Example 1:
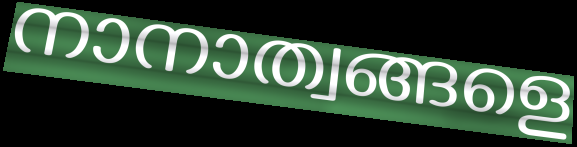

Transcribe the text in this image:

നാനാത്വങ്ങളെ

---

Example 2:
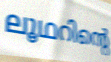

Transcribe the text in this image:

ലൂഥറിന്റെ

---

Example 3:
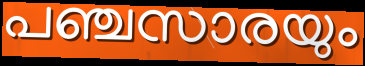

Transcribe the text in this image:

പഞ്ചസാരയും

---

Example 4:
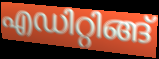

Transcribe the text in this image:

എഡിറ്റിങ്ങ്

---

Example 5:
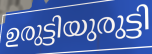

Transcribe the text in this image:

ഉരുട്ടിയുരുട്ടി